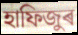
হাফিজুৰ